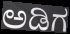
ಅಡಿಗ